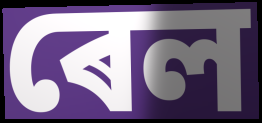
ৰেল